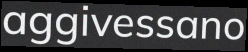
aggivessano